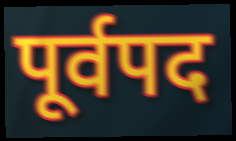
पूर्वपद